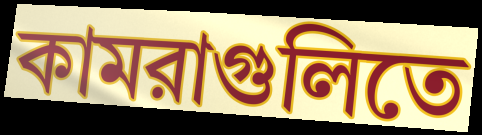
কামরাগুলিতে